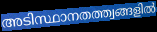
അടിസ്ഥാനതത്ത്വങ്ങളിൽ